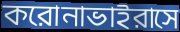
করোনাভাইরাসে